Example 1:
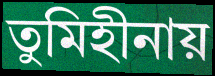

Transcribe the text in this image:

তুমিহীনায়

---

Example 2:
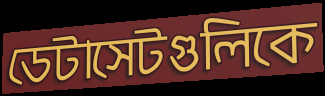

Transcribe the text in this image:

ডেটাসেটগুলিকে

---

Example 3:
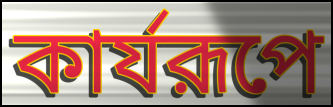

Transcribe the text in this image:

কার্যরূপে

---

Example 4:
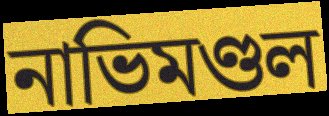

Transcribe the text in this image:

নাভিমণ্ডল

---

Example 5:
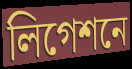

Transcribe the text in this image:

লিগেশনে